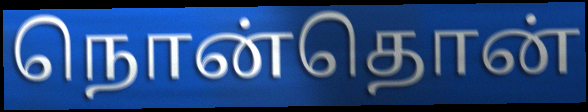
நொன்தொன்